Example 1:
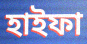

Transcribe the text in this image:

হাইফা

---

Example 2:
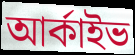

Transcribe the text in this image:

আর্কাইভ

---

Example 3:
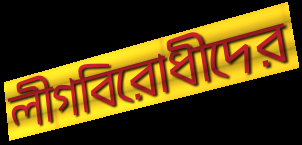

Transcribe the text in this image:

লীগবিরোধীদের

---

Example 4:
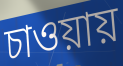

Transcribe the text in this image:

চাওয়ায়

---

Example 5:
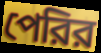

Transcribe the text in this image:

পেরির